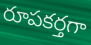
రూపకర్తగా